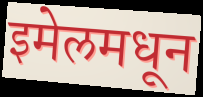
इमेलमधून